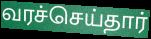
வரச்செய்தார்